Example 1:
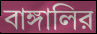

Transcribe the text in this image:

বাঙ্গালির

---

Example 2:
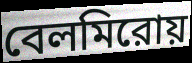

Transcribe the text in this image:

বেলমিরোয়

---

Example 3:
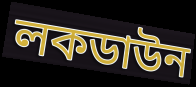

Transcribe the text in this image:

লকডাউন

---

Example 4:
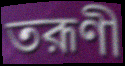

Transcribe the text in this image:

তরূণী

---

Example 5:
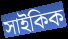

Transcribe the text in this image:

সাইকিক